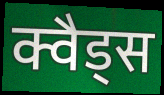
क्वैड्स